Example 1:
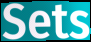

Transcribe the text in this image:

Sets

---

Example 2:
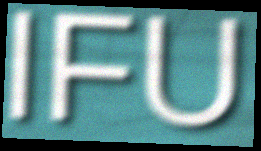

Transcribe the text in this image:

IFU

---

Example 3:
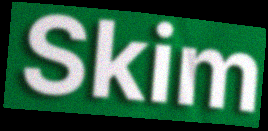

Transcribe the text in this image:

Skim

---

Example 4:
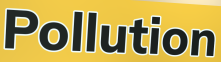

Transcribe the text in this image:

Pollution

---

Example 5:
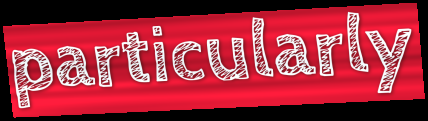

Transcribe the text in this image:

particularly